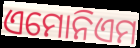
ଏମୋନିଏମ